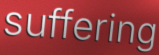
suffering